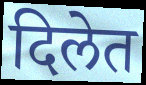
दिलेत